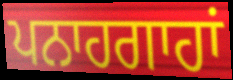
ਪਨਾਹਗਾਹਾਂ